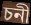
চনী